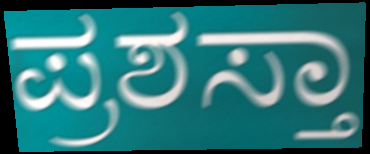
ಪ್ರಶಸ್ತಾ